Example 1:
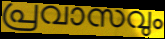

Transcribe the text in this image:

പ്രവാസവും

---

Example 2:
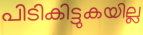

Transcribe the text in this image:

പിടികിട്ടുകയില്ല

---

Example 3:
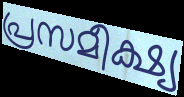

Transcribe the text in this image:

പ്രസമീക്ഷ്യ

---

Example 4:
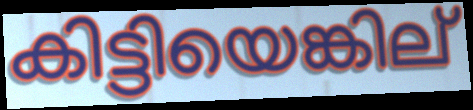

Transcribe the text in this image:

കിട്ടിയെങ്കില്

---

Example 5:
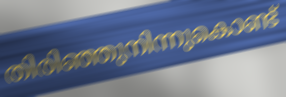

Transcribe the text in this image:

തിരിഞ്ഞുനിന്നുകൊണ്ട്